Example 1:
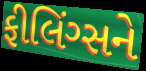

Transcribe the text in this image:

ફીલિંગ્સને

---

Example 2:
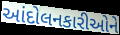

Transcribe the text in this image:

આંદોલનકારીઓને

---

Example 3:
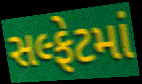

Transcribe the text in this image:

સલ્ફેટમાં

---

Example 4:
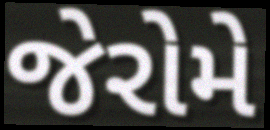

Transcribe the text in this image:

જેરોમે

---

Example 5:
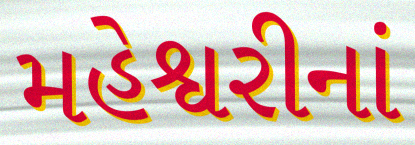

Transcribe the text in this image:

મહેશ્વરીનાં